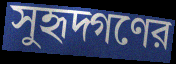
সুহৃদ্গণের